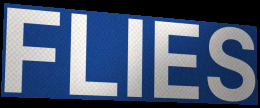
FLIES